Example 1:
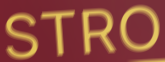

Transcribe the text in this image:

STRO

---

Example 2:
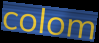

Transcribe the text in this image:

colom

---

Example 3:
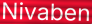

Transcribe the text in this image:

Nivaben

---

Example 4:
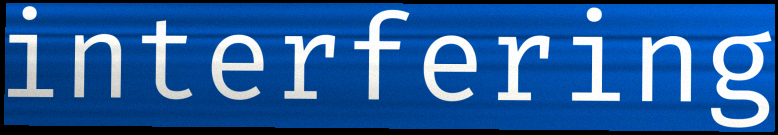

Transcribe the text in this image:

interfering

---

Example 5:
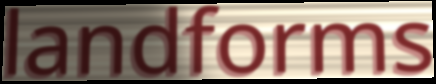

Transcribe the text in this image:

landforms